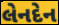
લેનદેન